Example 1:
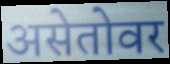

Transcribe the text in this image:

असेतोवर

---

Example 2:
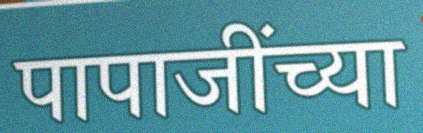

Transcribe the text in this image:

पापाजींच्या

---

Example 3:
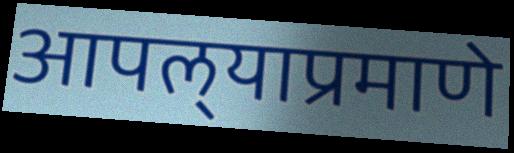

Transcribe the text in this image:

आपल्याप्रमाणे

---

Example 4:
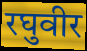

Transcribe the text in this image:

रघुवीर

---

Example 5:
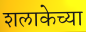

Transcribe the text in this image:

शलाकेच्या